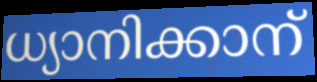
ധ്യാനിക്കാന്